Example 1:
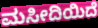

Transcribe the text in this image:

ಮಸೀದಿಯಿದೆ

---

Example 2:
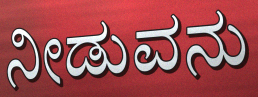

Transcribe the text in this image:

ನೀಡುವನು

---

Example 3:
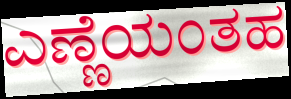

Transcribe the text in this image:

ಎಣ್ಣೆಯಂತಹ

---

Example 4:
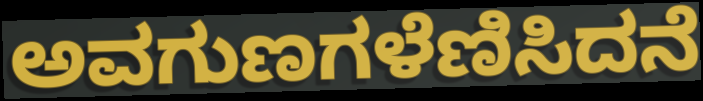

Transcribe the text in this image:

ಅವಗುಣಗಳೆಣಿಸಿದನೆ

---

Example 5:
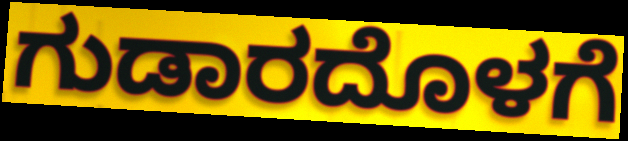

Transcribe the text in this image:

ಗುಡಾರದೊಳಗೆ